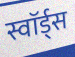
स्‍वॉर्ड्स